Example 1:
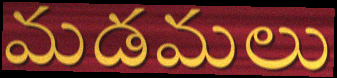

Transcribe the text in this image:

మడమలు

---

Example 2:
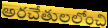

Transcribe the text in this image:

అరచేతులలోంచి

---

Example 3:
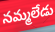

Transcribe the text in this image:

నమ్మలేడు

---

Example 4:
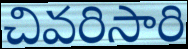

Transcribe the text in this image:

చివరిసారి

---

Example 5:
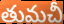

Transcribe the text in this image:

తుమచీ